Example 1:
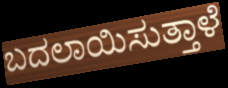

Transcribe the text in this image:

ಬದಲಾಯಿಸುತ್ತಾಳೆ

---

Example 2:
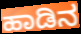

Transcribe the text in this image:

ಹಾಡಿನ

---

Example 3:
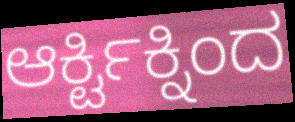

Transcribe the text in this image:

ಆರ್ಕ್ಟಿಕ್ನಿಂದ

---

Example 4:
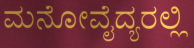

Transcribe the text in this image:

ಮನೋವೈದ್ಯರಲ್ಲಿ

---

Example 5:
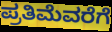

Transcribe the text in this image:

ಪ್ರತಿಮೆವರೆಗೆ